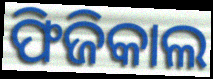
ଫିଜିକାଲ